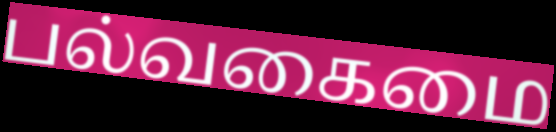
பல்வகைமை